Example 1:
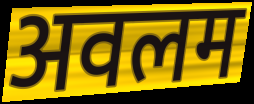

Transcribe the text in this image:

अवलम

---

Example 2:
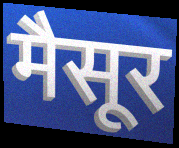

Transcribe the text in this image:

मैसूर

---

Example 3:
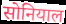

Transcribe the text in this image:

सोनियाल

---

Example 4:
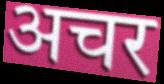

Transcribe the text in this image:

अचर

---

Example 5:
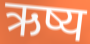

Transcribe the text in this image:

ऋष्य